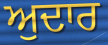
ਅੁਦਾਰ